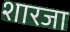
शारजा